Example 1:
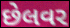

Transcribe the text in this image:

છેલવર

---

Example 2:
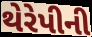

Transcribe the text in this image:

થેરેપીની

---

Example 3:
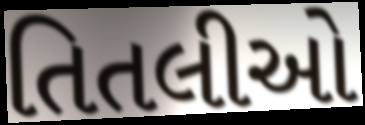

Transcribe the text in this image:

તિતલીઓ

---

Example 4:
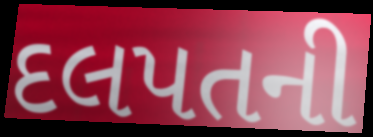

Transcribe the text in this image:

દલપતની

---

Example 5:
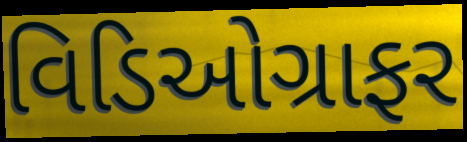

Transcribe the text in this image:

વિડિઓગ્રાફર